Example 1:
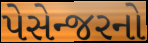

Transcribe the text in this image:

પેસેન્જરનો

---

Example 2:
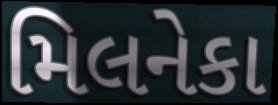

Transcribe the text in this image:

મિલનેકા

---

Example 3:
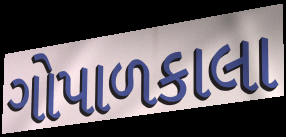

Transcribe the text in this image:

ગોપાળકાલા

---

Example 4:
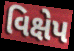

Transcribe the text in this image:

વિક્ષેપ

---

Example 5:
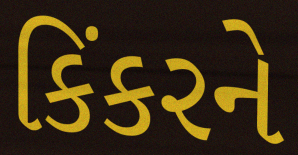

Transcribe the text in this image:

કિંકરને